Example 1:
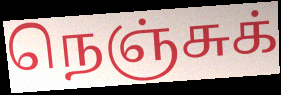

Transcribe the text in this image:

நெஞ்சுக்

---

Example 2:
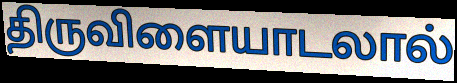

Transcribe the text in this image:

திருவிளையாடலால்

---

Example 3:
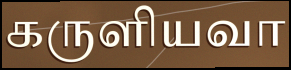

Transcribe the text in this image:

கருளியவா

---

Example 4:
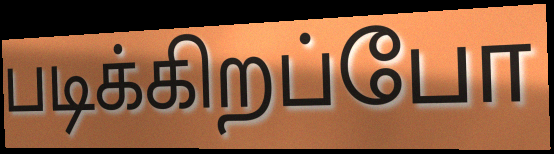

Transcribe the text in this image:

படிக்கிறப்போ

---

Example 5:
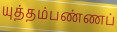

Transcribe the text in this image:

யுத்தம்பண்ணப்